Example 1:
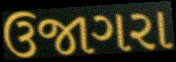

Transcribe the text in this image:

ઉજાગરા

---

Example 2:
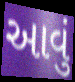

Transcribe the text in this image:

આવું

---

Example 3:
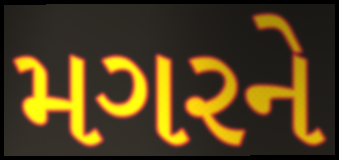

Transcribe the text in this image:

મગરને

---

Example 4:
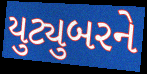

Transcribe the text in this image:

યુટ્યુબરને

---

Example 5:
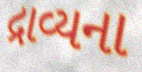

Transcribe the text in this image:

દ્રાવ્યના